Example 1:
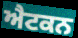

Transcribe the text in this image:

ਐਟਕਨ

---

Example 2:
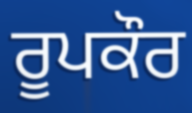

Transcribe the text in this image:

ਰੂਪਕੌਰ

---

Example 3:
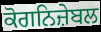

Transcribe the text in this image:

ਕੋਗਨਿਜ਼ੇਬਲ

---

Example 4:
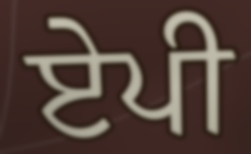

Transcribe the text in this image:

ਏਪੀ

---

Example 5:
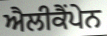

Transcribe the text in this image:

ਐਲੀਕੈਂਪੇਨ